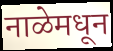
नाळेमधून